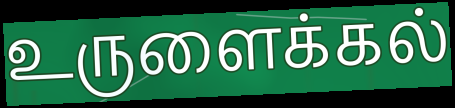
உருளைக்கல்